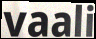
vaali